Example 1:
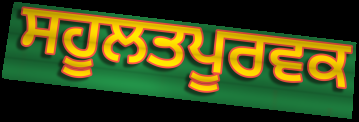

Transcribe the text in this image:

ਸਹੂਲਤਪੂਰਵਕ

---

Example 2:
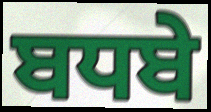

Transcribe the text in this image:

ਬਧਬੇ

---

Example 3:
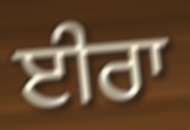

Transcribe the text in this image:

ਈਰਾ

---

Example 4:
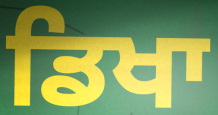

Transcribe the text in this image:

ਡਿਖਾ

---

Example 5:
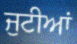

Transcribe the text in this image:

ਜੁਟੀਆਂ